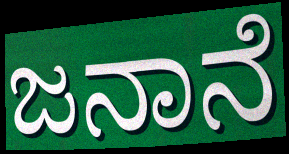
ಜನಾನೆ